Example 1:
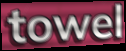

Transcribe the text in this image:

towel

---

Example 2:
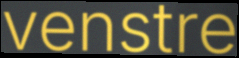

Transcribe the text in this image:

venstre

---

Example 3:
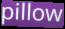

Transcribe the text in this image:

pillow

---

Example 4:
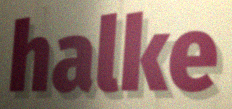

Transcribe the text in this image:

halke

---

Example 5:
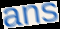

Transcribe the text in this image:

ans